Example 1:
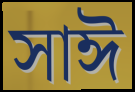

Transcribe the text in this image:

সাঈ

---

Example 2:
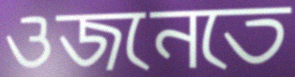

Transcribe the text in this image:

ওজনেতে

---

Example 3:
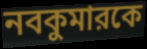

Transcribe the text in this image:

নবকুমারকে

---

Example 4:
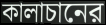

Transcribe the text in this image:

কালাচানের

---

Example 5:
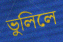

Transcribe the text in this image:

ভুলিলে